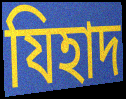
যিহাদ